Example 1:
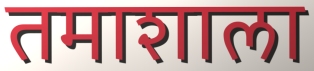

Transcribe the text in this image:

तमाशाला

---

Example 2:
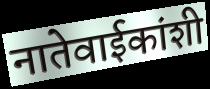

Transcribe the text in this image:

नातेवाईकांशी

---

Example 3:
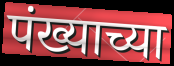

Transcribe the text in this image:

पंख्याच्या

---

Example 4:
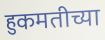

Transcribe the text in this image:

हुकमतीच्या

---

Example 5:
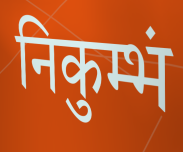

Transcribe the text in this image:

निकुम्भं